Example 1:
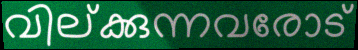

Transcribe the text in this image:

വില്ക്കുന്നവരോട്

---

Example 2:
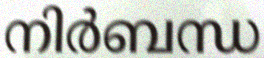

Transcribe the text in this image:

നിർബന്ധ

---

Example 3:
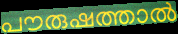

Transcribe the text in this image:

പൗരുഷത്താൽ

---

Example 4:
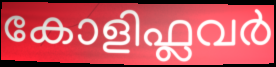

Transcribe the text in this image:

കോളിഫ്ലവർ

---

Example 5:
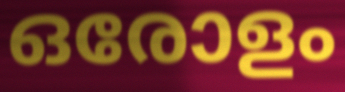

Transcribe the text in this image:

ഒരോളം